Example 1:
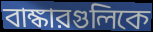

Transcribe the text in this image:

বাঙ্কারগুলিকে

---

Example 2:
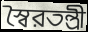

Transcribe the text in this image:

স্বৈরতন্ত্রী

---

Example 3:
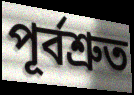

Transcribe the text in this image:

পূর্বশ্রুত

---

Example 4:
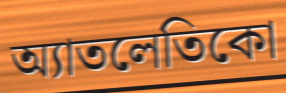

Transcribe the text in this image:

অ্যাতলেতিকো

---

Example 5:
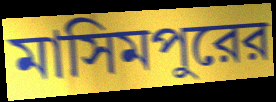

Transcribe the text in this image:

মাসিমপুরের